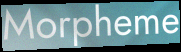
Morpheme